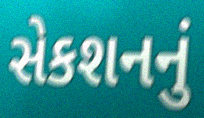
સેકશનનું